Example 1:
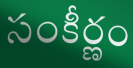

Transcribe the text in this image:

సంకీర్ణం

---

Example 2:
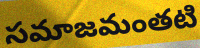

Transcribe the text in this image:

సమాజమంతటి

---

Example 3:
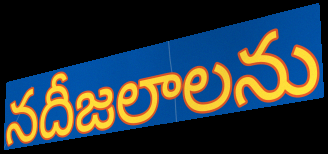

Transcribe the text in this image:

నదీజలాలను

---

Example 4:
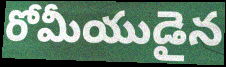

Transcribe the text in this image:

రోమీయుడైన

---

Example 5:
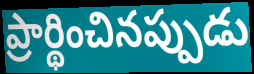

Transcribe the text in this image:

ప్రార్థించినప్పుడు